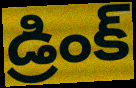
డ్రింక్